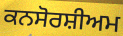
ਕਨਸੋਰਸ਼ੀਅਮ